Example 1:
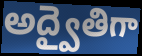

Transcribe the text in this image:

అద్వైతిగా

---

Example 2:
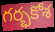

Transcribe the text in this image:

గర్భకోశ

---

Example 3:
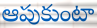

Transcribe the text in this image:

ఆపుకుంటా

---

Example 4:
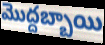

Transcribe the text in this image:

మొద్దబ్బాయి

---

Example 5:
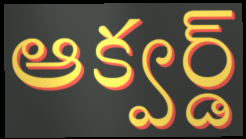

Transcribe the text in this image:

ఆక్వర్డ్